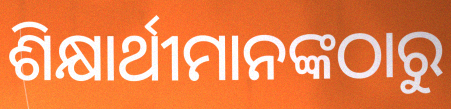
ଶିକ୍ଷାର୍ଥୀମାନଙ୍କଠାରୁ